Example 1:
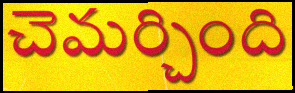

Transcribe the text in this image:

చెమర్చింది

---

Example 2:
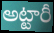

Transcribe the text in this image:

అట్టారీ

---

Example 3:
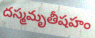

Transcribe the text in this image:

దస్మమృతీషహం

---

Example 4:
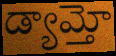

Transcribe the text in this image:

డ్యామ్తో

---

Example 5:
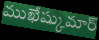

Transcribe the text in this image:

ముఖేష్కుమార్